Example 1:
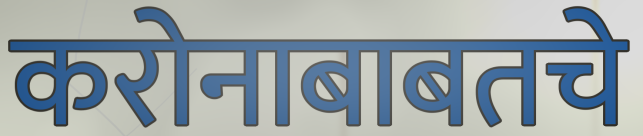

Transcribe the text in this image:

करोनाबाबतचे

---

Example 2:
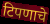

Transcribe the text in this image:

टिपणाचे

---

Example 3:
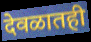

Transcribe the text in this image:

देवळातही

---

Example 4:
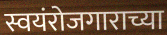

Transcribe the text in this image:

स्वयंरोजगाराच्या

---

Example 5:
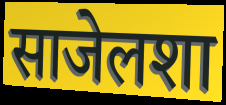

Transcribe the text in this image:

साजेलशा